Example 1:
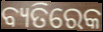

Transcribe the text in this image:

ବ୍ୟତିରେକ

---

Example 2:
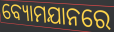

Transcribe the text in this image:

ବ୍ୟୋମଯାନରେ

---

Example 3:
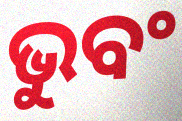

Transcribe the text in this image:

ଭୁବଂ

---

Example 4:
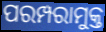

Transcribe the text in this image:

ପରମ୍ପରାମୁକ୍ତ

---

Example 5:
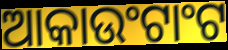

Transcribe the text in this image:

ଆକାଉଂଟାଂଟ